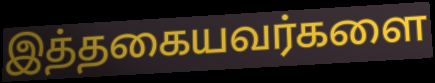
இத்தகையவர்களை